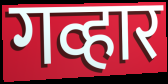
गव्हार